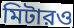
মিটারও